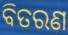
ବିତରଣ